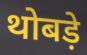
थोबड़े